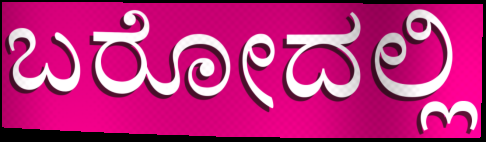
ಬರೋದಲ್ಲಿ